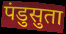
पंडुसुता